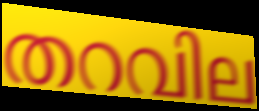
തറവില